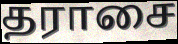
தராசை